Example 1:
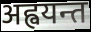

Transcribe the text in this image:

अह्वयन्त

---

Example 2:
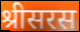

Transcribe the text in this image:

श्रीसरस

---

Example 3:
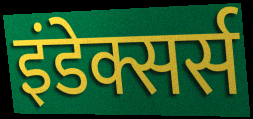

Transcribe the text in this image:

इंडेक्सर्स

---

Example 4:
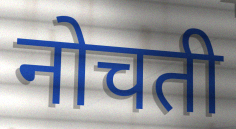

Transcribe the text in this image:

नोचती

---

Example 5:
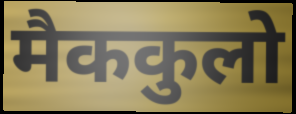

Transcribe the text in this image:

मैककुलो